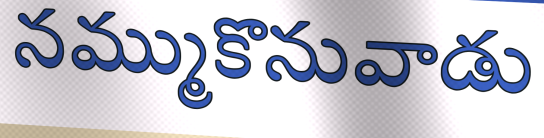
నమ్ముకొనువాడు